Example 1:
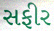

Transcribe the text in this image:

સફીર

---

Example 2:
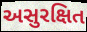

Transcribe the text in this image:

અસુરક્ષિત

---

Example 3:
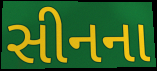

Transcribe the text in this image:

સીનના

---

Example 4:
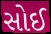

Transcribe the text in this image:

સોઈ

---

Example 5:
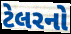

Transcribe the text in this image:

ટેલરનો